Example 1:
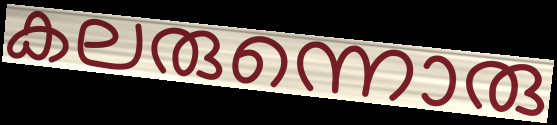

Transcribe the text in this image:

കലരുന്നൊരു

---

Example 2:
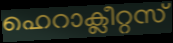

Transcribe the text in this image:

ഹെറാക്ലീറ്റസ്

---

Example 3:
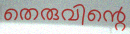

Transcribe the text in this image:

തെരുവിന്റെ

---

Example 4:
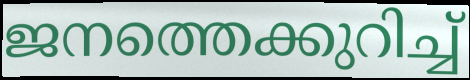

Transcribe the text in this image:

ജനത്തെക്കുറിച്ച്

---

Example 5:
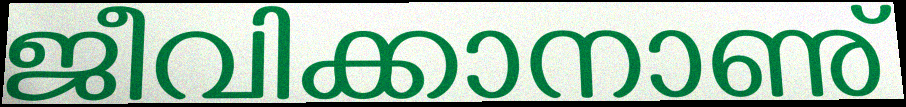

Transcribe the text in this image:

ജീവിക്കാനാണു്